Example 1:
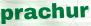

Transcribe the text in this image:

prachur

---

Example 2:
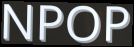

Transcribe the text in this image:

NPOP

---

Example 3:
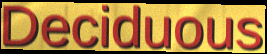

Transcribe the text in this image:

Deciduous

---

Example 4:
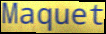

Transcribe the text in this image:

Maquet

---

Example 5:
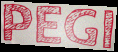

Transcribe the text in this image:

PEGI